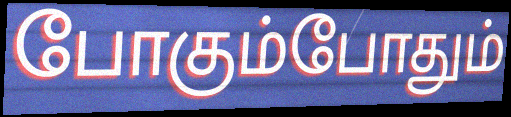
போகும்போதும்